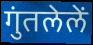
गुंतलेलें